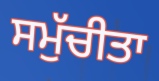
ਸਮੁੱਚੀਤਾ